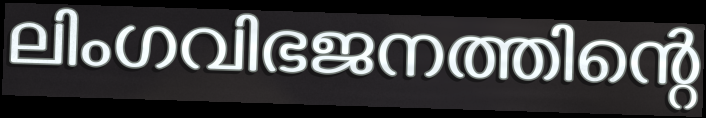
ലിംഗവിഭജനത്തിന്റെ